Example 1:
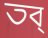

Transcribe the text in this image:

তব্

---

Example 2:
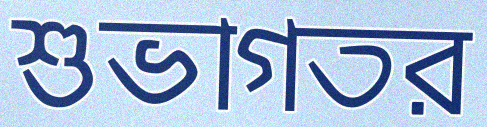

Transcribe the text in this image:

শুভাগতর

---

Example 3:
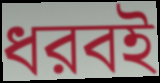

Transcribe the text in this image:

ধরবই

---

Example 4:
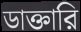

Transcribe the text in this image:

ডাক্তারি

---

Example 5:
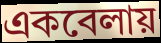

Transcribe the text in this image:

একবেলায়